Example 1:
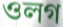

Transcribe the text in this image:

ওলগ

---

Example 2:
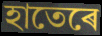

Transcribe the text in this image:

হাতেৰে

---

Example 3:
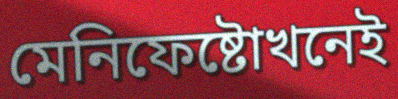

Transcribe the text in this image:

মেনিফেষ্টোখনেই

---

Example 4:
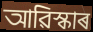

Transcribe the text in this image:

আৱিস্কাৰ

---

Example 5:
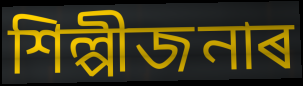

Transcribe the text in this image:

শিল্পীজনাৰ